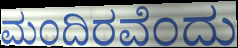
ಮಂದಿರವೆಂದು